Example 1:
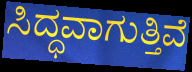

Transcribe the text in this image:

ಸಿದ್ಧವಾಗುತ್ತಿವೆ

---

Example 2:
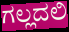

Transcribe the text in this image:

ಗಲ್ಲದಲಿ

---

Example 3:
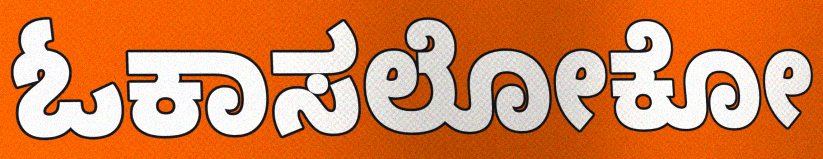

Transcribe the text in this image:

ಓಕಾಸಲೋಕೋ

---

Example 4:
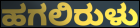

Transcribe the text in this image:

ಹಗಲಿರುಳು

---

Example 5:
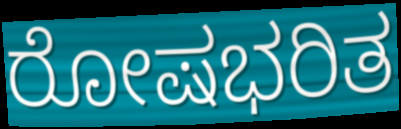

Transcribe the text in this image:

ರೋಷಭರಿತ